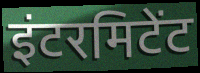
इंटरमिटेंट